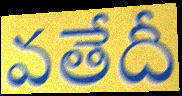
వతేదీ